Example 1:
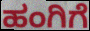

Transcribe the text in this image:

ಹಂಗಿಗೆ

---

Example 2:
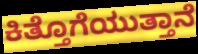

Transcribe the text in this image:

ಕಿತ್ತೊಗೆಯುತ್ತಾನೆ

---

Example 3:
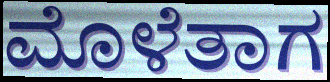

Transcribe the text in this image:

ಮೊಳೆತಾಗ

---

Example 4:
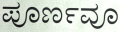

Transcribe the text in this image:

ಪೂರ್ಣವೂ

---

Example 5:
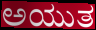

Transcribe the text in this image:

ಅಯುತ